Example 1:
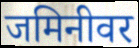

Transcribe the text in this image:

जमिनीवर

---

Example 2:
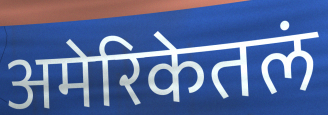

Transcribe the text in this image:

अमेरिकेतलं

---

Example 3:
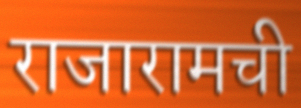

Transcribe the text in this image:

राजारामची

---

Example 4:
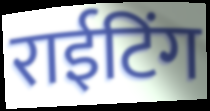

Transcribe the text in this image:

राईटिंग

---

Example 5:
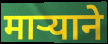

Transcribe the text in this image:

मार्‍याने